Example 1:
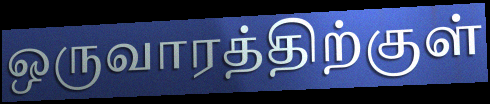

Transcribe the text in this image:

ஒருவாரத்திற்குள்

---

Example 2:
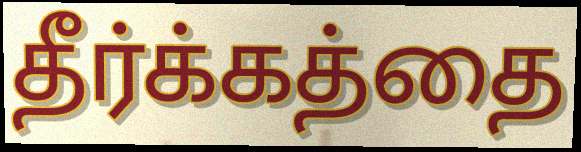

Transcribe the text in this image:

தீர்க்கத்தை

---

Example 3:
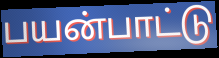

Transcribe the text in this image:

பயன்பாட்டு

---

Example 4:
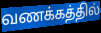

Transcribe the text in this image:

வணக்கத்தில்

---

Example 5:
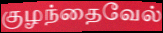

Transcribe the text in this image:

குழந்தைவேல்